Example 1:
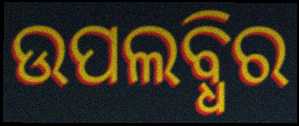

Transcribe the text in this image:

ଉପଲବ୍ଧିର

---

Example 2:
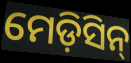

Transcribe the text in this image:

ମେଡ଼ିସିନ୍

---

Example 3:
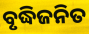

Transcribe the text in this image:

ବୃଦ୍ଧିଜନିତ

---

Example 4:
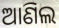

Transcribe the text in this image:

ଆଣିଲ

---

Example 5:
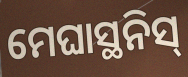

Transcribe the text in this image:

ମେଘାସ୍ଥନିସ୍